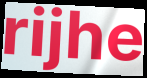
rijhe